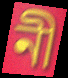
নী